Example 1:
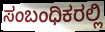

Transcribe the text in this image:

ಸಂಬಂಧಿಕರಲ್ಲಿ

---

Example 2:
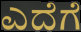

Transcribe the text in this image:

ಎದೆಗೆ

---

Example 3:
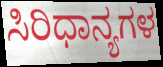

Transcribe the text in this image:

ಸಿರಿಧಾನ್ಯಗಳ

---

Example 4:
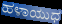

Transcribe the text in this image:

ಹಳಾಯುಧ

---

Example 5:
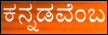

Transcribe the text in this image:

ಕನ್ನಡವೆಂಬ